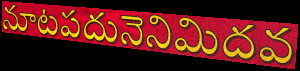
నూటపదునెనిమిదవ